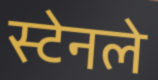
स्टेनले